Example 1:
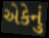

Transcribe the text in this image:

એકેનું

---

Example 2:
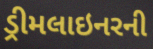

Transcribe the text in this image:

ડ્રીમલાઇનરની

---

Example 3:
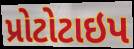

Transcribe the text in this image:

પ્રોટોટાઇપ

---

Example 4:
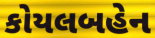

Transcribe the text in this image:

કોયલબહેન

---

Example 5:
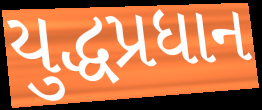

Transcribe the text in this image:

યુદ્ધપ્રધાન